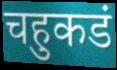
चहुकडं